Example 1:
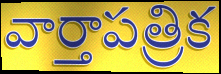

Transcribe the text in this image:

వార్తాపత్రిక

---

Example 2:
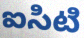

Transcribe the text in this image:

ఐసిటి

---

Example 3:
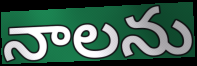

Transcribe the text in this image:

నాలను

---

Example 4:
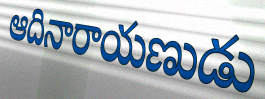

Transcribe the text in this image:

ఆదినారాయణుడు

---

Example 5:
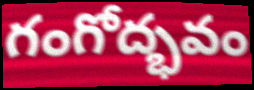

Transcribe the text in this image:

గంగోద్భవం